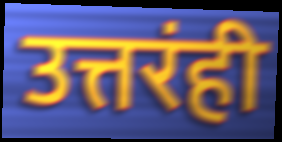
उत्तरंही